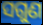
ସଗୁଣ